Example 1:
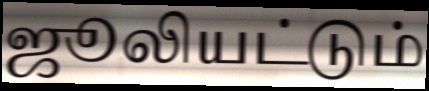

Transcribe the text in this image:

ஜூலியட்டும்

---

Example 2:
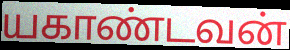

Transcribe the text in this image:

யகாண்டவன்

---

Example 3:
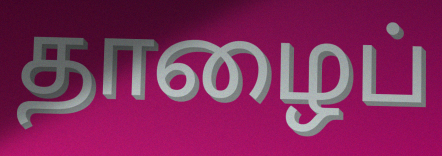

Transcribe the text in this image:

தாழைப்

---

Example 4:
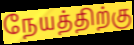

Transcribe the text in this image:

நேயத்திற்கு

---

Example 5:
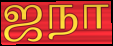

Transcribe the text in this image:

ஜநா